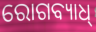
ରୋଗବ୍ୟାଧ୍